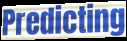
Predicting